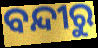
ବନ୍ଦୀରୁ